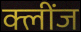
क्लींज